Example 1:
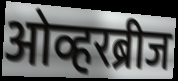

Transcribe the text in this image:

ओव्हरब्रीज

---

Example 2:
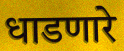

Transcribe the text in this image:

धाडणारे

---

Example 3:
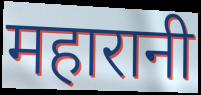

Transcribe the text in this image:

महारानी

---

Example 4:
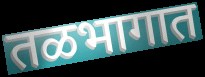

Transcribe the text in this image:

तळभागात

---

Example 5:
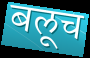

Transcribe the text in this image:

बलूच